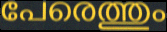
പേരെത്തും